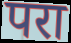
परा